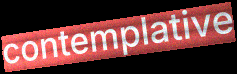
contemplative